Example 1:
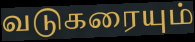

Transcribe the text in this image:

வடுகரையும்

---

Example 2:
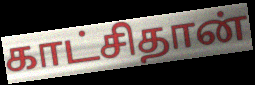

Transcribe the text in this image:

காட்சிதான்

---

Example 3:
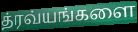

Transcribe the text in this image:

த்ரவ்யங்களை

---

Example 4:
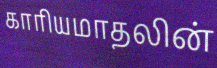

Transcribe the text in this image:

காரியமாதலின்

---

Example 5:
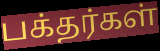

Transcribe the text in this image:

பக்தர்கள்